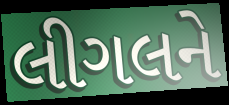
લીગલને